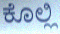
ಕೊಲ್ಲಿ